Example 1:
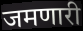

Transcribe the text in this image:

जमणारी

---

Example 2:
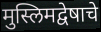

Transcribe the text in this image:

मुस्लिमद्वेषाचे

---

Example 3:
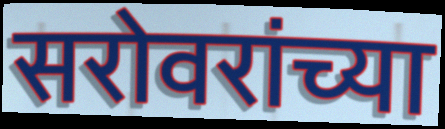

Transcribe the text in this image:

सरोवरांच्या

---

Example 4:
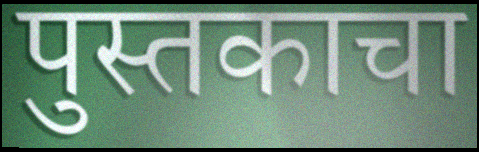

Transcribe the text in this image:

पुस्तकाचा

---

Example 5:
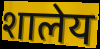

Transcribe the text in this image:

शालेय